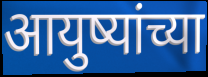
आयुष्यांच्या